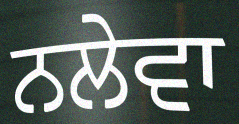
ਨਲੇਵਾ